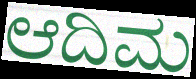
ಆದಿಮ